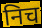
निच